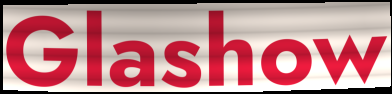
Glashow